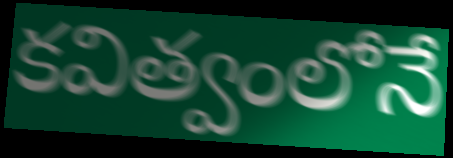
కవిత్వంలోనే